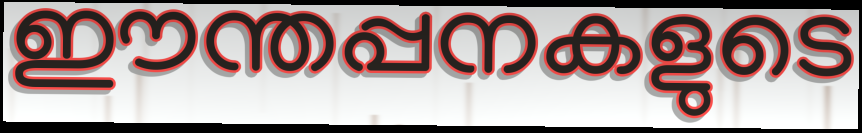
ഈന്തപ്പനകളുടെ